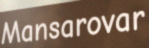
Mansarovar